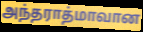
அந்தராத்மாவான